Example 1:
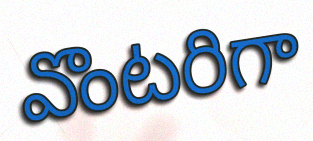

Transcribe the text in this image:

వొంటరిగా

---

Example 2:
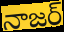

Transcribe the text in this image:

నాజర్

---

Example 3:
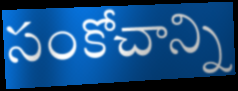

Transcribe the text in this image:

సంకోచాన్ని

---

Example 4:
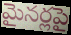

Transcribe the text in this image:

మైనర్లపై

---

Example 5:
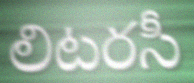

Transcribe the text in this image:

లిటరసీ